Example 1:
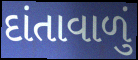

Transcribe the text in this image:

દાંતાવાળું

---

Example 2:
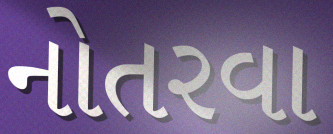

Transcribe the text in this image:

નોતરવા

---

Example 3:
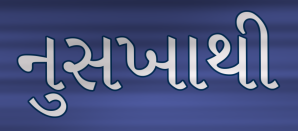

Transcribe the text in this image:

નુસખાથી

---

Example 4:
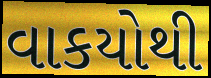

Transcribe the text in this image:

વાકયોથી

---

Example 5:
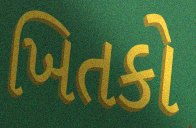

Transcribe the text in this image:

ખિતકો